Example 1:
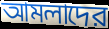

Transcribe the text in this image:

আমলাদের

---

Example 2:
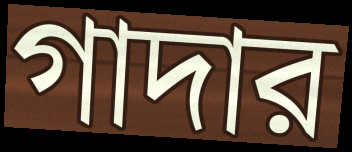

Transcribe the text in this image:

গাদার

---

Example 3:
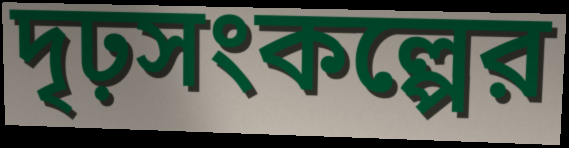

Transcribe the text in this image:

দৃঢ়সংকল্পের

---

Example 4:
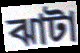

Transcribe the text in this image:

ঝাটা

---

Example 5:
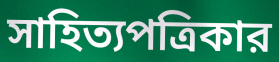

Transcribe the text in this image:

সাহিত্যপত্রিকার